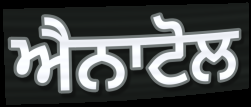
ਐਨਾਟੋਲ